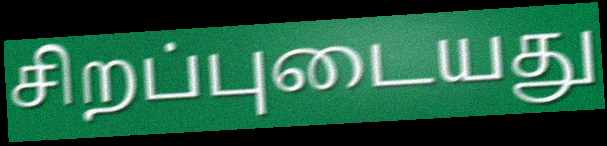
சிறப்புடையது